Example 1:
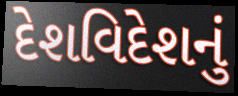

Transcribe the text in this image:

દેશવિદેશનું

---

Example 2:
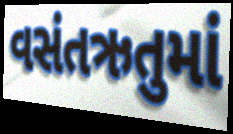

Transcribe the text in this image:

વસંતઋતુમાં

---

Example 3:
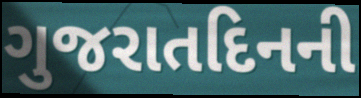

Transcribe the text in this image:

ગુજરાતદિનની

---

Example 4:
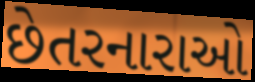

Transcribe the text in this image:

છેતરનારાઓ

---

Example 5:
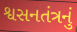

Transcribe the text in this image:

શ્વસનતંત્રનું